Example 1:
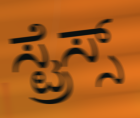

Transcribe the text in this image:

ಸ್ಟ್ರೆಸ್ಸ್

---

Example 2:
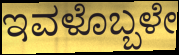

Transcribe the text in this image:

ಇವಳೊಬ್ಬಳೇ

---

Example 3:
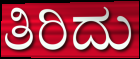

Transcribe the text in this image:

ತಿರಿದು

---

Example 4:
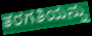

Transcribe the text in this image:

ತರಗತಿಯನ್ನು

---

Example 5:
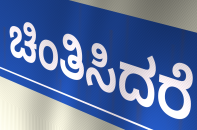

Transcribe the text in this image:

ಚಿಂತಿಸಿದರೆ